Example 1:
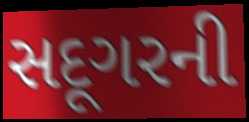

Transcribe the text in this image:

સદૂગરની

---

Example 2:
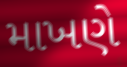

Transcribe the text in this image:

માખણે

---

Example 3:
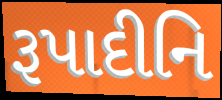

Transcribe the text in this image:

રૂપાદીનિ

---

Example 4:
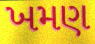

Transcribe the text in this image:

ખમણ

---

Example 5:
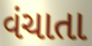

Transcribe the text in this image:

વંચાતા